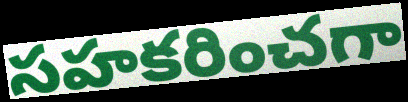
సహకరించగా